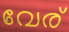
വേര്